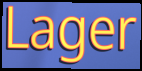
Lager